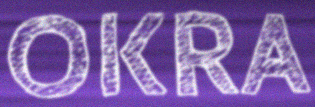
OKRA